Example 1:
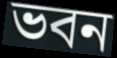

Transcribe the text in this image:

ভবন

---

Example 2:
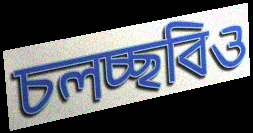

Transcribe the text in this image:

চলচ্ছবিও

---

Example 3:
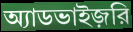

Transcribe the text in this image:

অ্যাডভাইজ়রি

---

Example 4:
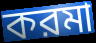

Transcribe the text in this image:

করমা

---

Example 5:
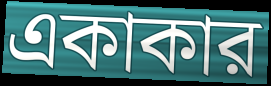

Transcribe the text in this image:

একাকার